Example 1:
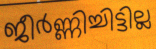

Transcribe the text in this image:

ജീർണ്ണിച്ചിട്ടില്ല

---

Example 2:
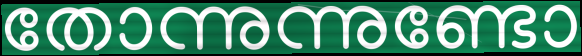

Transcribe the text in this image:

തോന്നുന്നുണ്ടോ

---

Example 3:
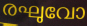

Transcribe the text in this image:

രഘുവോ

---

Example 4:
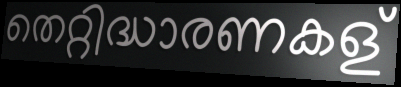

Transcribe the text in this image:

തെറ്റിദ്ധാരണകള്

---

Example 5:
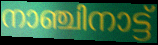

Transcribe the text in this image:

നാഞ്ചിനാട്ട്